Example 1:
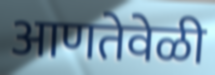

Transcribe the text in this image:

आणतेवेळी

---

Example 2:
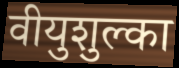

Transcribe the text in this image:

वीयुशुल्का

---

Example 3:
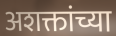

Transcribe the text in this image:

अशक्तांच्या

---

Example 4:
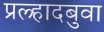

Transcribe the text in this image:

प्रल्हादबुवा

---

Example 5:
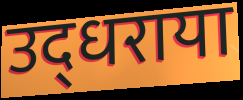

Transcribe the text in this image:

उद्धराया